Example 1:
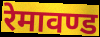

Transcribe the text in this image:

रेमावण्ड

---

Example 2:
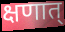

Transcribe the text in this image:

क्षणात्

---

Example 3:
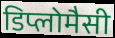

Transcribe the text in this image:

डिप्लोमैसी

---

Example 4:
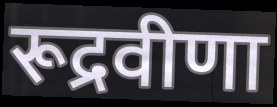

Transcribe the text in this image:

रूद्रवीणा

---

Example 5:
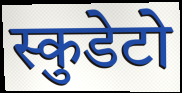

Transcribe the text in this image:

स्कुडेटो